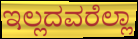
ಇಲ್ಲದವರೆಲ್ಲಾ